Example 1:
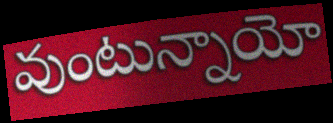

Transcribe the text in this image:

వుంటున్నాయో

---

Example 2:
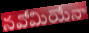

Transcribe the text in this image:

నవోమియేనా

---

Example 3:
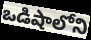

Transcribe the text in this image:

ఒడిషాలోని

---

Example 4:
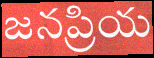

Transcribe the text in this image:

జనప్రియ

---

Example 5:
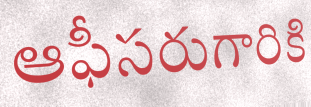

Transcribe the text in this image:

ఆఫీసరుగారికి